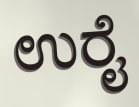
ಉರೈ